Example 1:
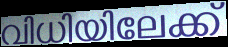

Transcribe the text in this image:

വിധിയിലേക്ക്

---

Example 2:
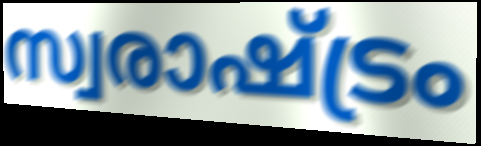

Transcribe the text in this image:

സ്വരാഷ്ട്രം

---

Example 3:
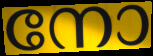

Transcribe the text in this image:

നോ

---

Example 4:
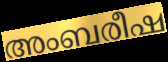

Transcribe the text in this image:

അംബരീഷ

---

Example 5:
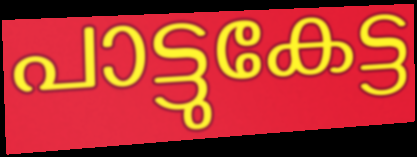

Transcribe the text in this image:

പാട്ടുകേട്ട